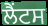
ਲੈਂਟਸ